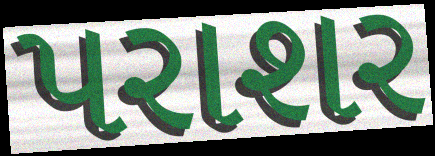
પરાશર